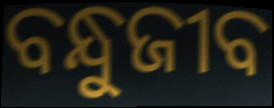
ବନ୍ଧୁଜୀବ